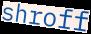
shroff